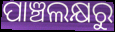
ପାଞ୍ଚଲକ୍ଷରୁ